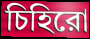
চিহিরো